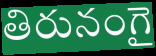
తిరునంగై